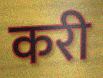
करी